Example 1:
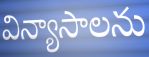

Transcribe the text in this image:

విన్యాసాలను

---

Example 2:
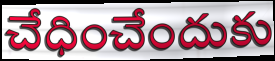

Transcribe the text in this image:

చేధించేందుకు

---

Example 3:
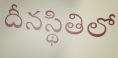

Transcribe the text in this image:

దీనస్థితిలో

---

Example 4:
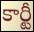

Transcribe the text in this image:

కార్టీ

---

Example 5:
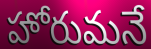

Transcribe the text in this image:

హోరుమనే